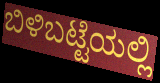
ಬಿಳಿಬಟ್ಟೆಯಲ್ಲಿ